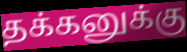
தக்கனுக்கு